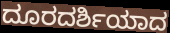
ದೂರದರ್ಶಿಯಾದ